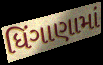
ધિંગાણામાં